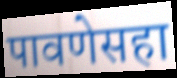
पावणेसहा